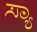
ಸ್ಯಾ